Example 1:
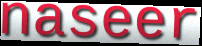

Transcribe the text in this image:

naseer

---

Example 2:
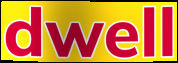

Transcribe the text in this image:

dwell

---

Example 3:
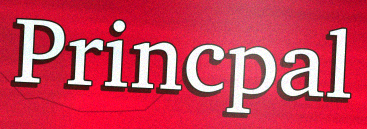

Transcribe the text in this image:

Princpal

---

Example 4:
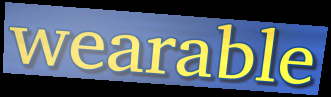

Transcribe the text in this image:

wearable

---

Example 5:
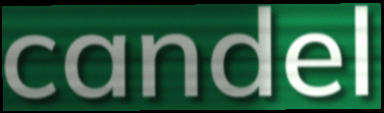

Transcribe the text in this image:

candel